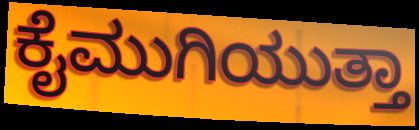
ಕೈಮುಗಿಯುತ್ತಾ